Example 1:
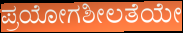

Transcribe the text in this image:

ಪ್ರಯೋಗಶೀಲತೆಯೇ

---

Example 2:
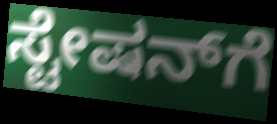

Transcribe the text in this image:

ಸ್ಟೇಷನ್‍ಗೆ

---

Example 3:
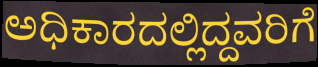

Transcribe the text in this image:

ಅಧಿಕಾರದಲ್ಲಿದ್ದವರಿಗೆ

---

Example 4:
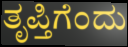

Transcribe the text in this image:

ತೃಪ್ತಿಗೆಂದು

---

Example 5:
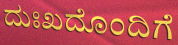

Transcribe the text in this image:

ದುಃಖದೊಂದಿಗೆ